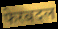
फेरबदल